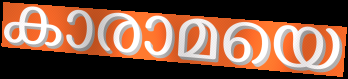
കാരാമയെ